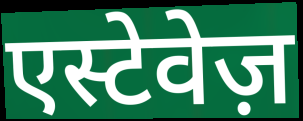
एस्टेवेज़